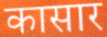
कासार